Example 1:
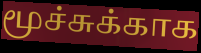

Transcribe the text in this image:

மூச்சுக்காக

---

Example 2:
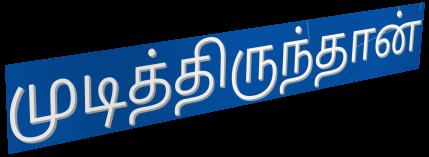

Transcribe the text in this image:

முடித்திருந்தான்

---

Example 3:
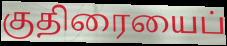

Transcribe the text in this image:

குதிரையைப்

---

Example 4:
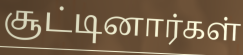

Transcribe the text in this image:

சூட்டினார்கள்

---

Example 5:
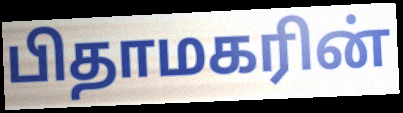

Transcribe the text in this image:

பிதாமகரின்